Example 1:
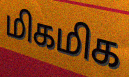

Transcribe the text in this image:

மிகமிக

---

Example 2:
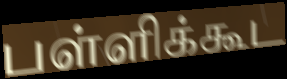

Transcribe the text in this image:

பள்ளிக்கூட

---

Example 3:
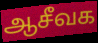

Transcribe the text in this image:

ஆசீவக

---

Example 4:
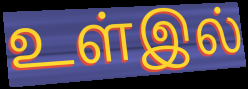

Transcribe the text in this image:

உள்இல்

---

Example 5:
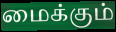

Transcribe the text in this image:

மைக்கும்